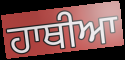
ਹਾਥੀਆ